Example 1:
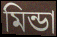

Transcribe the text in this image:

মিন্ডা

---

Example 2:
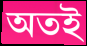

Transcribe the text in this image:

অতই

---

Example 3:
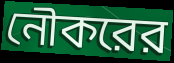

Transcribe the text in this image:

নৌকরের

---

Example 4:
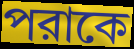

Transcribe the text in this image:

পরাকে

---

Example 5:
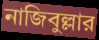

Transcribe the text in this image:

নাজিবুল্লার